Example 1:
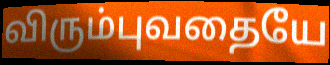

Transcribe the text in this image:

விரும்புவதையே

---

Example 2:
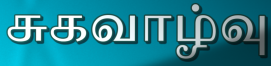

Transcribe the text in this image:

சுகவாழ்வு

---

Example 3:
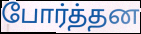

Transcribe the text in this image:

போர்த்தன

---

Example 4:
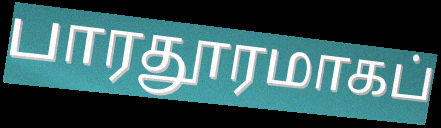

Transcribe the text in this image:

பாரதூரமாகப்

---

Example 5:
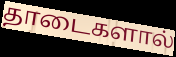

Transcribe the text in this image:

தாடைகளால்